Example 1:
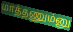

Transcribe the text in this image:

மாத்தணும்னு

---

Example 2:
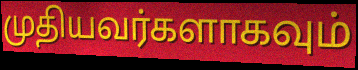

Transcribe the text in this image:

முதியவர்களாகவும்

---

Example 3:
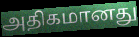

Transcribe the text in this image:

அதிகமானது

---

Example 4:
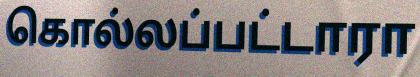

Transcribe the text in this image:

கொல்லப்பட்டாரா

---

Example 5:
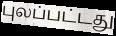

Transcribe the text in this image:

புலப்பட்டது